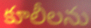
కూలీలను